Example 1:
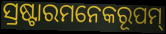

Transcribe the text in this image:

ସ୍ରଷ୍ଟାରମନେକରୂପମ୍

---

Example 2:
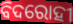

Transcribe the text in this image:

ବିଦରୋହୀ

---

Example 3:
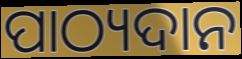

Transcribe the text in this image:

ପାଠ୍ୟଦାନ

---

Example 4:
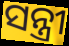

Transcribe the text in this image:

ସନ୍ତ୍ରୀ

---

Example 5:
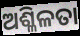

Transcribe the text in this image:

ଅଶ୍ଳିଳତା